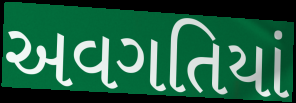
અવગતિયાં